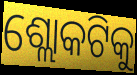
ଶ୍ଲୋକଟିକୁ